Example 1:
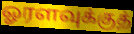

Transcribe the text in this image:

ஓரளவுக்குத்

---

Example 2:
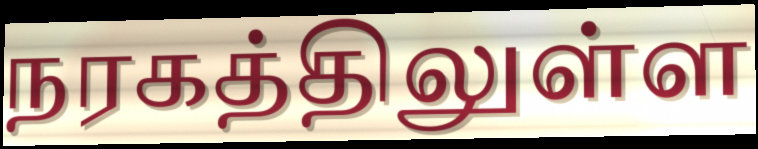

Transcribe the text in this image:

நரகத்திலுள்ள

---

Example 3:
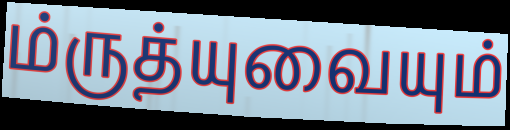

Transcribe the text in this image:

ம்ருத்யுவையும்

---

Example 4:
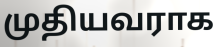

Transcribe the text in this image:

முதியவராக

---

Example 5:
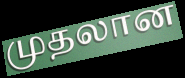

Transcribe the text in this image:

முதலான